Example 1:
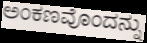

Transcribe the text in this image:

ಅಂಕಣವೊಂದನ್ನು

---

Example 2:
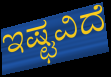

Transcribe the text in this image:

ಇಷ್ಟವಿದೆ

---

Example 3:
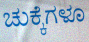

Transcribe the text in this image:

ಚುಕ್ಕೆಗಳೂ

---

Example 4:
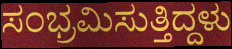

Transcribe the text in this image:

ಸಂಭ್ರಮಿಸುತ್ತಿದ್ದಳು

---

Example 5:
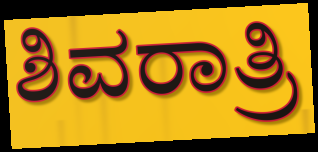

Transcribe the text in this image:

ಶಿವರಾತ್ರಿ